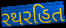
રથરહિત